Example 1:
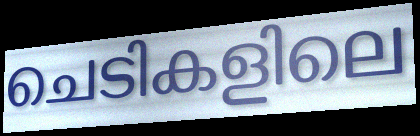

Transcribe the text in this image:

ചെടികളിലെ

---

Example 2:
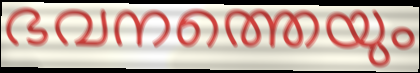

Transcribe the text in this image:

ഭവനത്തെയും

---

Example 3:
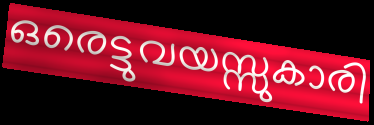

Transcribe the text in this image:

ഒരെട്ടുവയസ്സുകാരി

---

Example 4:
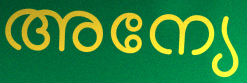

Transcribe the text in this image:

അന്യേ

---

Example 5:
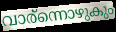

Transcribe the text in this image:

വാര്ന്നൊഴുകും